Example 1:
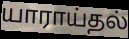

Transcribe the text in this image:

யாராய்தல்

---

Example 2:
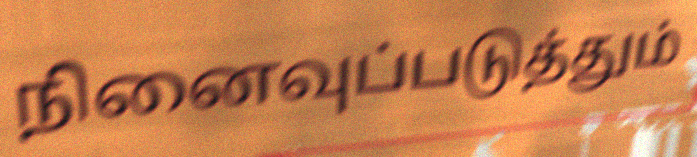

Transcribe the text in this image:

நினைவுப்படுத்தும்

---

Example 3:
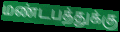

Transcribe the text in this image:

மண்டபத்துக்கு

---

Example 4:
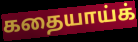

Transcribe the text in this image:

கதையாய்க்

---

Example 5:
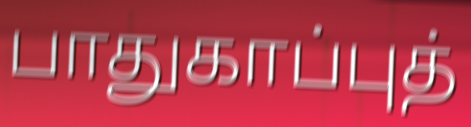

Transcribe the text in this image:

பாதுகாப்புத்